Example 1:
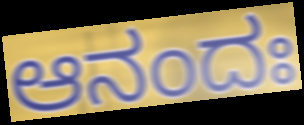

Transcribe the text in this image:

ಆನಂದಃ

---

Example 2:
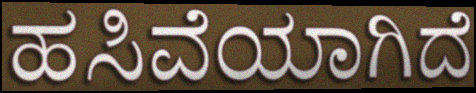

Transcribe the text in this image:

ಹಸಿವೆಯಾಗಿದೆ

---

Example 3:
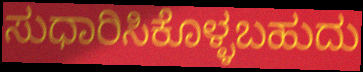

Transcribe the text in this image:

ಸುಧಾರಿಸಿಕೊಳ್ಳಬಹುದು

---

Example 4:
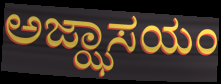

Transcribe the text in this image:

ಅಜ್ಝಾಸಯಂ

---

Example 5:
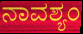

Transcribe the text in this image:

ನಾವಶ್ಯಂ